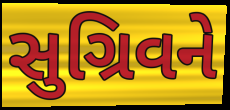
સુગ્રિવને